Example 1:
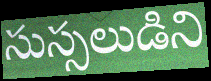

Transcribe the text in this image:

సుస్సలుడిని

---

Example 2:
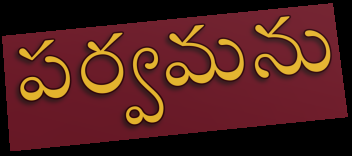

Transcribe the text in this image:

పర్వమను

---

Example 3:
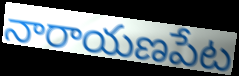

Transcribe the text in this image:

నారాయణపేట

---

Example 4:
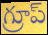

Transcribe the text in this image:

గ్రూప్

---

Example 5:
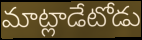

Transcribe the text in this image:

మాట్లాడేటోడు